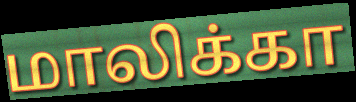
மாலிக்கா